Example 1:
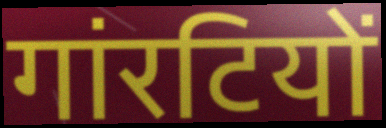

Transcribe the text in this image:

गांरटियों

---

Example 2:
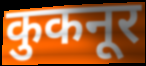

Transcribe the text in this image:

कुकनूर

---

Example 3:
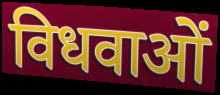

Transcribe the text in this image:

विधवाओं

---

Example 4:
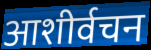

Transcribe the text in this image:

आशीर्वचन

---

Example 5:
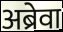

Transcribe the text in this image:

अब्रेवा